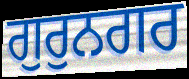
ਗੁਰੁਨਗਰ